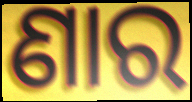
ଣାର